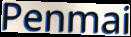
Penmai